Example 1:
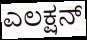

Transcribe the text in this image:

ಎಲಕ್ಷನ್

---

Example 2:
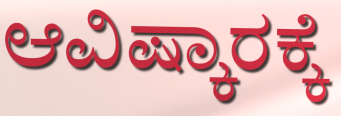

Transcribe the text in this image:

ಆವಿಷ್ಕಾರಕ್ಕೆ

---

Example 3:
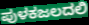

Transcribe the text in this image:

ಪುಳಕಜಲದಲಿ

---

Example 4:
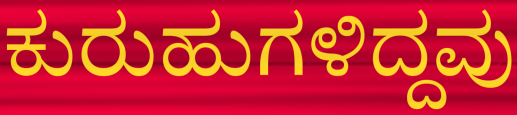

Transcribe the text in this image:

ಕುರುಹುಗಳಿದ್ದವು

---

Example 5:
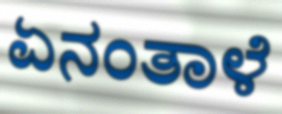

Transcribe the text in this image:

ಏನಂತಾಳೆ